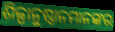
ଶିଳ୍ପାନୁଷ୍ଠାନମାନଙ୍କର